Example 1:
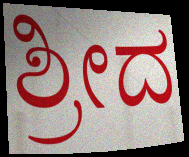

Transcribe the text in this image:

ಶ್ರೀದ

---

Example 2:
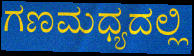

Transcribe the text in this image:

ಗಣಮಧ್ಯದಲ್ಲಿ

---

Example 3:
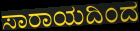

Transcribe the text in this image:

ಸಾರಾಯದಿಂದ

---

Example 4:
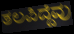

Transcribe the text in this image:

ತಲಪಿದ್ದೆವು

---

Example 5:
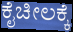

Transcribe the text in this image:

ಕೈಚೀಲಕ್ಕೆ